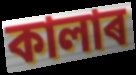
কালাৰ